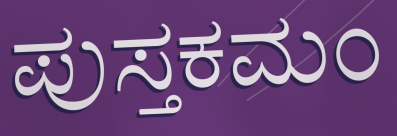
ಪುಸ್ತಕಮಂ